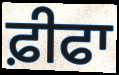
ਫ਼ੀਫਾ